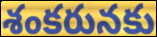
శంకరునకు